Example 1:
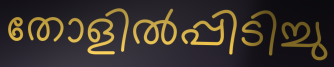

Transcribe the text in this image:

തോളിൽപ്പിടിച്ചു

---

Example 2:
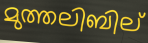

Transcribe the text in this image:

മുത്തലിബില്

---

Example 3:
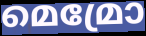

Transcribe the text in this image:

മെമ്രോ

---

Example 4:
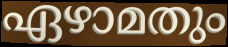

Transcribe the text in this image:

ഏഴാമതും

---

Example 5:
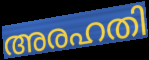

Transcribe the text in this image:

അരഹതി